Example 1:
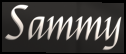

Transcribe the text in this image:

Sammy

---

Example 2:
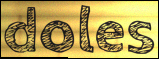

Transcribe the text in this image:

doles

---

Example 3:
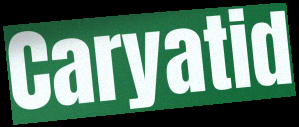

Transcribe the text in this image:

Caryatid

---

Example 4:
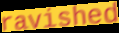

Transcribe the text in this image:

ravished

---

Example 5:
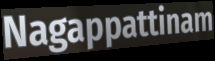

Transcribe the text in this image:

Nagappattinam